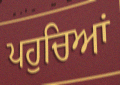
ਪਹੁਚਿਆਂ